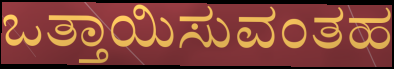
ಒತ್ತಾಯಿಸುವಂತಹ